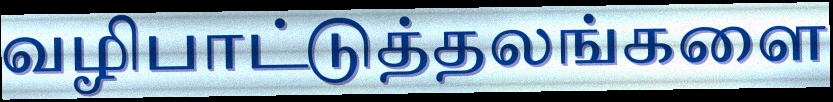
வழிபாட்டுத்தலங்களை